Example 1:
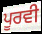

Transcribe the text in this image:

ਪੂਰਵੀ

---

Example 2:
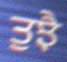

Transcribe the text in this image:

ਤੁਝੈ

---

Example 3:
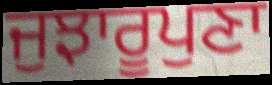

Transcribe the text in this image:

ਜੁਝਾਰੂਪੁਣਾ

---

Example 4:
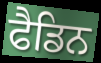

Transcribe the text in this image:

ਫੈਡਿਨ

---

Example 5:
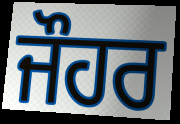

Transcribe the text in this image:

ਜੌਹਰ